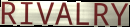
RIVALRY